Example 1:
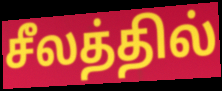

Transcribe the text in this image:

சீலத்தில்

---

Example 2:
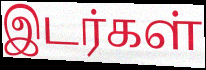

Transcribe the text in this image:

இடர்கள்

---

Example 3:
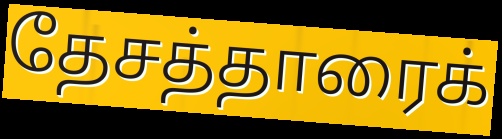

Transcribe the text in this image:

தேசத்தாரைக்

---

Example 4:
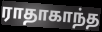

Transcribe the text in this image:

ராதாகாந்த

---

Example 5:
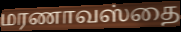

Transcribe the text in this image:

மரணாவஸ்தை